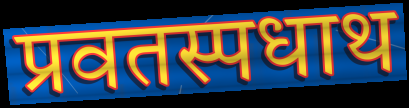
प्रवतस्पधाथ